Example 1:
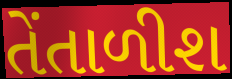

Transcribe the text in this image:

તેંતાળીશ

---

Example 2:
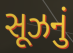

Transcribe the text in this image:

સૂઝનું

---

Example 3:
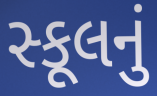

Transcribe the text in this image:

સ્કૂલનું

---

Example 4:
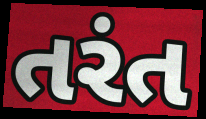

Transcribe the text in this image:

તરંત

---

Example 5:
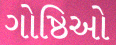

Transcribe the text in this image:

ગોષ્ઠિઓ